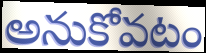
అనుకోవటం